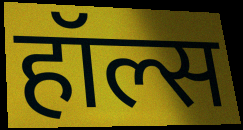
हॉल्स